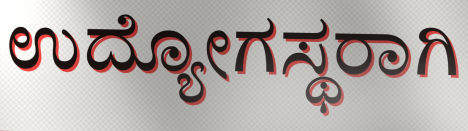
ಉದ್ಯೋಗಸ್ಥರಾಗಿ